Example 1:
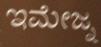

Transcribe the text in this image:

ಇಮೇಜ್ನ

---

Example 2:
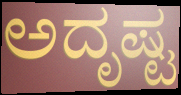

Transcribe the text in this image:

ಅದೃಷ್ಟ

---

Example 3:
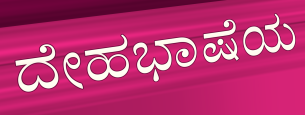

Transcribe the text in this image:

ದೇಹಭಾಷೆಯ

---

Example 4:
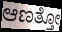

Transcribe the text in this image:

ಆಣತ್ತೋ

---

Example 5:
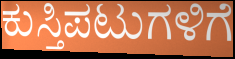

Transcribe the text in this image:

ಕುಸ್ತಿಪಟುಗಳಿಗೆ